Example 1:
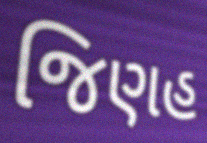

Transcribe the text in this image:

જિણહ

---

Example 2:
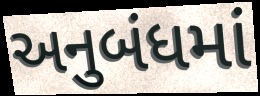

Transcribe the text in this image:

અનુબંધમાં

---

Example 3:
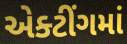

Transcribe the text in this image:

એક્ટીંગમાં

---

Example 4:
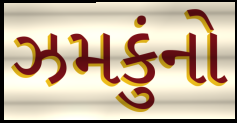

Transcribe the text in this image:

ઝમકુંનો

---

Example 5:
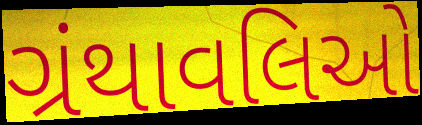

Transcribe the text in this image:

ગ્રંથાવલિઓ